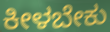
ಕೀಳಬೇಕು